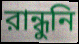
রান্ধুনি